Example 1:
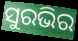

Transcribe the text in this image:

ସୁରଭିର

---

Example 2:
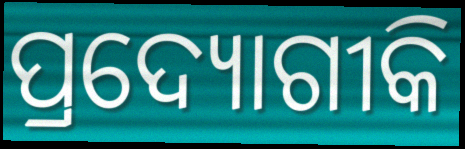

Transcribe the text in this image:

ପ୍ରଦ୍ୟୋଗୀକି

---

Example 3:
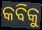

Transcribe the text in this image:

କବିକୁ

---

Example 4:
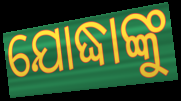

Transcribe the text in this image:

ଯୋଦ୍ଧାଙ୍କୁ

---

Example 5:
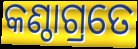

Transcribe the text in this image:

କଣ୍ଠାଗ୍ରତେ